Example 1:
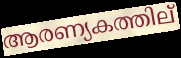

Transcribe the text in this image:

ആരണ്യകത്തില്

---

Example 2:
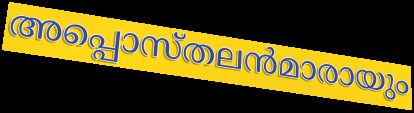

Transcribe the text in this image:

അപ്പൊസ്തലൻമാരായും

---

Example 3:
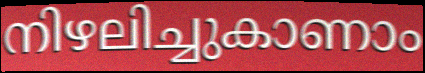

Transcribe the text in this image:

നിഴലിച്ചുകാണാം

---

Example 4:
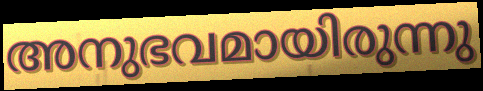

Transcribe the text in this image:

അനുഭവമായിരുന്നു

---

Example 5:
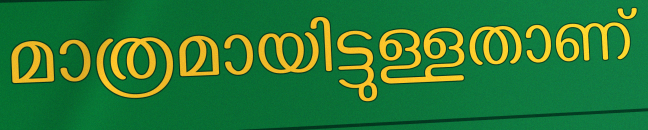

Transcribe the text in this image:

മാത്രമായിട്ടുള്ളതാണ്